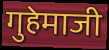
गुहेमाजी